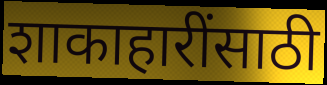
शाकाहारींसाठी